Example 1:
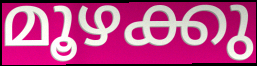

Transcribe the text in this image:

മൂഴക്കു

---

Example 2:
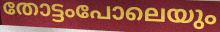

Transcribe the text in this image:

തോട്ടംപോലെയും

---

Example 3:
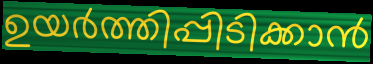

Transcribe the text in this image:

ഉയർത്തിപ്പിടിക്കാൻ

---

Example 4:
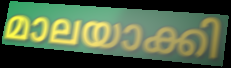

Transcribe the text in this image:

മാലയാക്കി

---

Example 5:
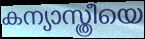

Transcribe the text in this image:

കന്യാസ്ത്രീയെ